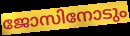
ജോസിനോടും